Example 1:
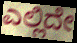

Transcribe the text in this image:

ಎಲ್ಲಿದೇ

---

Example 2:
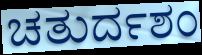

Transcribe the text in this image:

ಚತುರ್ದಶಂ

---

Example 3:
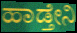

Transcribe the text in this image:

ಹಾಡ್ತೇನಿ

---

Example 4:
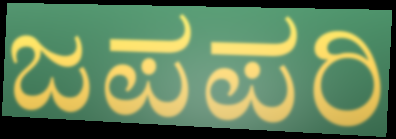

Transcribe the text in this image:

ಜಪಪರಿ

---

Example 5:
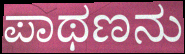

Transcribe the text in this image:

ಪಾಥಣನು